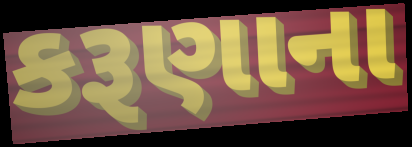
કરૂણાના